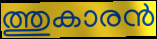
ത്തുകാരൻ